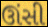
ઊંસી